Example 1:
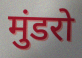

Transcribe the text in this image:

मुंडरो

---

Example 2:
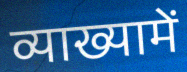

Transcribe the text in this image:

व्याख्यामें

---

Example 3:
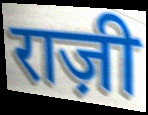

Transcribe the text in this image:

राज़ी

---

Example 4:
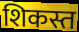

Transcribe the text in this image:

शिकस्त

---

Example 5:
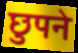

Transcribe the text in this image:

छुपने